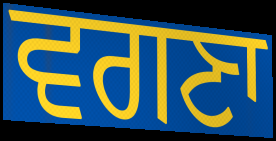
ਵਗਣਾ